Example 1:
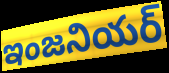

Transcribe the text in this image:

ఇంజనియర్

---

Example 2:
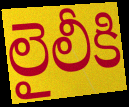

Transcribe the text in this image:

లైలీకి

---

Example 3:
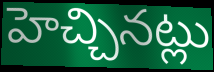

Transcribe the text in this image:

హెచ్చినట్లు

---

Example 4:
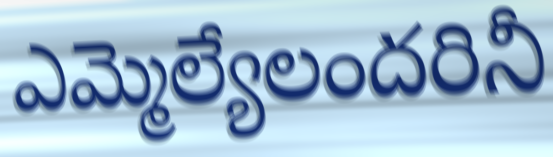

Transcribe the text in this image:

ఎమ్మెల్యేలందరినీ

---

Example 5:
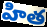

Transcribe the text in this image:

హిత